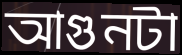
আগুনটা